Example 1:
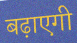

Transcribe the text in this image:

बढ़ाएगी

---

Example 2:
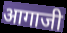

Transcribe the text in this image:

आगाजी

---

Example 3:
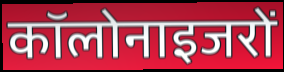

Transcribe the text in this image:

कॉलोनाइजरों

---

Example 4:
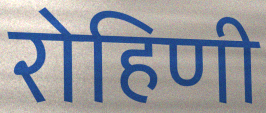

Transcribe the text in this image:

रोहिणी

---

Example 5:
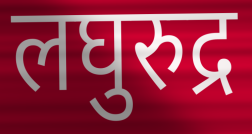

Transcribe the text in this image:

लघुरुद्र